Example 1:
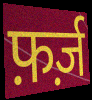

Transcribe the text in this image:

फ़र्ज़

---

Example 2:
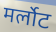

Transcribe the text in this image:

मर्लोट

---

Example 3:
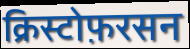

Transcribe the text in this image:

क्रिस्टोफ़रसन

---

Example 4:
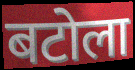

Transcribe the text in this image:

बटोला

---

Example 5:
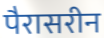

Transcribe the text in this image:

पैरासरीन